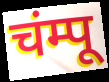
चंम्पू